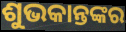
ଶୁଭକାନ୍ତଙ୍କର